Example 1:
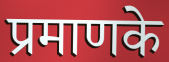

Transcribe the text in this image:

प्रमाणके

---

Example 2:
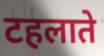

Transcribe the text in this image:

टहलाते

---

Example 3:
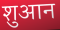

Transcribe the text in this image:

शुआन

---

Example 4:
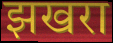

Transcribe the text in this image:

झखरा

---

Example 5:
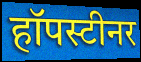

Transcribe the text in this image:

हॉपस्टीनर